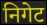
निगेट